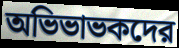
অভিভাভকদের